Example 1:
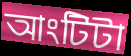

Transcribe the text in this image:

আংটিটা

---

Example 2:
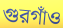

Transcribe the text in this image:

গুরগাঁও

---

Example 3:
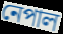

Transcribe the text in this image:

নেপাল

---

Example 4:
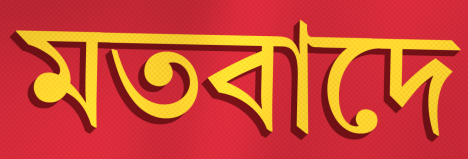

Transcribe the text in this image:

মতবাদে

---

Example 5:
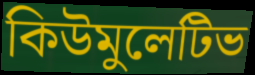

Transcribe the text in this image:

কিউমুলেটিভ